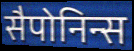
सैपोनिन्स